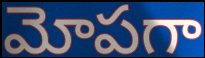
మోపగా